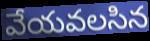
వేయవలసిన